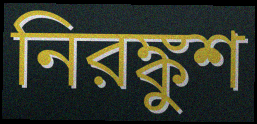
নিরঙ্কুশ